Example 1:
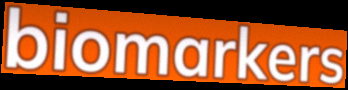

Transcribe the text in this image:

biomarkers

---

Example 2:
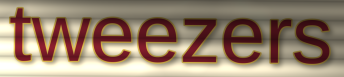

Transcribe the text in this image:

tweezers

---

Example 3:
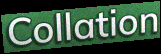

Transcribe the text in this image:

Collation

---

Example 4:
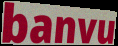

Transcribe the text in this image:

banvu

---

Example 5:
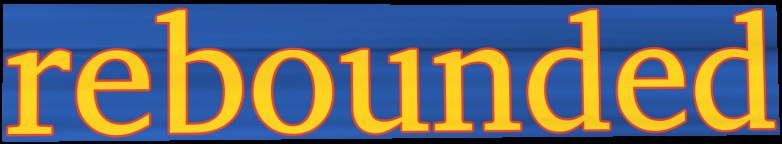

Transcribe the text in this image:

rebounded